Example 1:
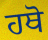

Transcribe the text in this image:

ਹਥੋ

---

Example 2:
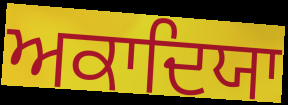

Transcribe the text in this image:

ਅਕਾਦਿਯਾ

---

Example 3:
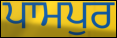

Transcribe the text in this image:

ਪਾਮਪੁਰ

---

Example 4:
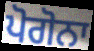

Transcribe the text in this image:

ਪੋਗੋਨਾ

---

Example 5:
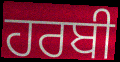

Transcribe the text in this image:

ਹਰਬੀ